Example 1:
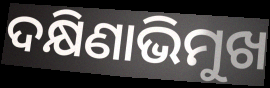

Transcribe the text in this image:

ଦକ୍ଷିଣାଭିମୁଖ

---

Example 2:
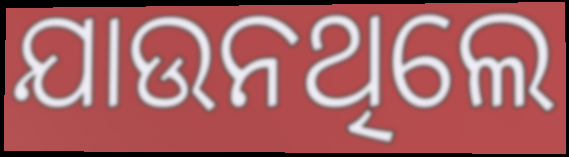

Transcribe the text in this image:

ଯାଉନଥିଲେ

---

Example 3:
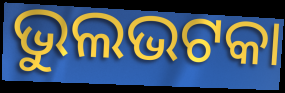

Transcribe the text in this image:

ଭୁଲଭଟକା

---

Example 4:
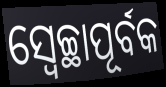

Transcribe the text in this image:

ସ୍ଵେଚ୍ଛାପୂର୍ବକ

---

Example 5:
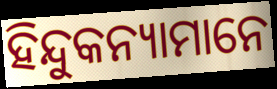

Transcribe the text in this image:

ହିନ୍ଦୁକନ୍ୟାମାନେ